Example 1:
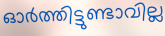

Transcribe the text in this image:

ഓർത്തിട്ടുണ്ടാവില്ല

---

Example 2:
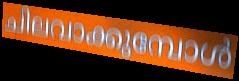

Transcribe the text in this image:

ചിലവാക്കുമ്പോൾ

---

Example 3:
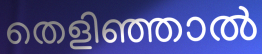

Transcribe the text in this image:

തെളിഞ്ഞാൽ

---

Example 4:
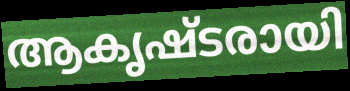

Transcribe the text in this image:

ആകൃഷ്ടരായി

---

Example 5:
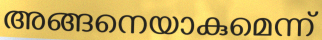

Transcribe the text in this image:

അങ്ങനെയാകുമെന്ന്